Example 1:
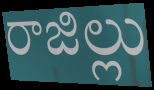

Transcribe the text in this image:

రాజిల్లు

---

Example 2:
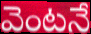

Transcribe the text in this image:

వెంటనే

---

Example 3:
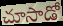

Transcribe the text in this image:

చూసాడో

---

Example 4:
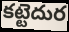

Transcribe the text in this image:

కట్టెదుర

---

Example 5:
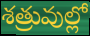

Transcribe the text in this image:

శత్రువుల్లో